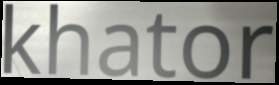
khator